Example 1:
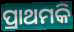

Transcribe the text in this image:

ପ୍ରାଥମକି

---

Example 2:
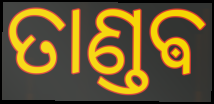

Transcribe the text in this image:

ତାଣ୍ଡଵ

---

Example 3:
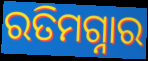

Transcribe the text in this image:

ରତିମଗ୍ନାର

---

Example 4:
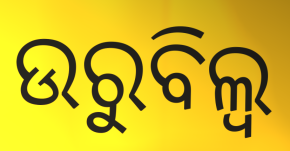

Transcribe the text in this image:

ଉରୁବିଲ୍ୱ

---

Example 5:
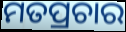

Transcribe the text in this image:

ମତପ୍ରଚାର